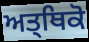
ਅਤ੍ਥਿਕੋ